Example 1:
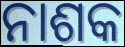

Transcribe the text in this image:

ନାଶକ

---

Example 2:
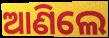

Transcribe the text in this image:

ଆଣିଲେ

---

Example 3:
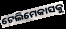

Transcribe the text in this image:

ଟେଲିମେକାସକୁ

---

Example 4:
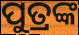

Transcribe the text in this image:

ପୁତ୍ରଙ୍କ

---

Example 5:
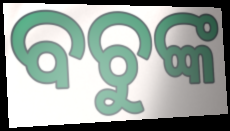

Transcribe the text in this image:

ବଚୁଙ୍କ